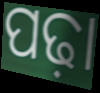
ପଢ଼ା